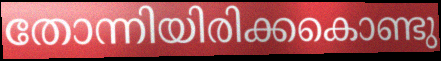
തോന്നിയിരിക്കകൊണ്ടു